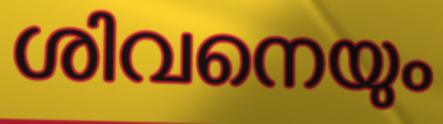
ശിവനെയും